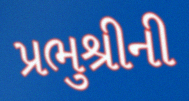
પ્રભુશ્રીની